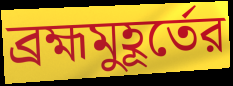
ব্রহ্মমুহূর্তের